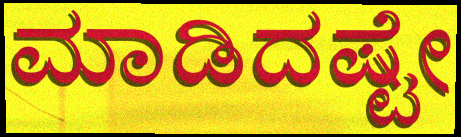
ಮಾಡಿದಷ್ಟೇ